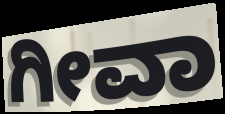
ಗೀವಾ